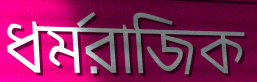
ধর্মরাজিক